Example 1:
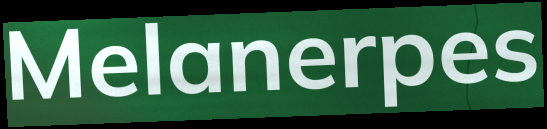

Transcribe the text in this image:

Melanerpes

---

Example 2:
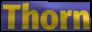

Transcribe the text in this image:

Thorn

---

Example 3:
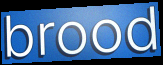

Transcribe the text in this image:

brood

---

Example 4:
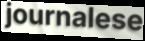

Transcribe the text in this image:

journalese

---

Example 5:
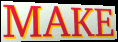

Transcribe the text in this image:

MAKE